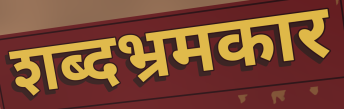
शब्दभ्रमकार